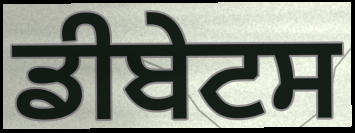
ਡੀਬੇਟਸ